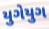
યુગેયુગ